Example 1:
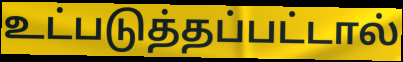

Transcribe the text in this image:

உட்படுத்தப்பட்டால்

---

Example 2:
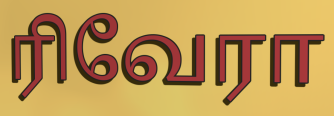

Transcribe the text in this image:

ரிவேரா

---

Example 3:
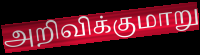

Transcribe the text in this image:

அறிவிக்குமாறு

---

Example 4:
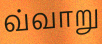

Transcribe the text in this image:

வ்வாறு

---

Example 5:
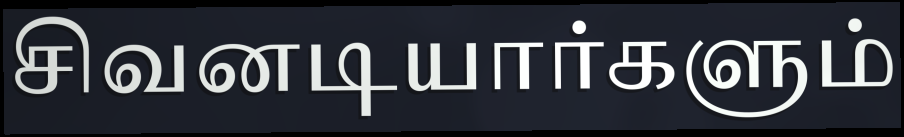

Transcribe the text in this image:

சிவனடியார்களும்